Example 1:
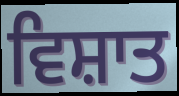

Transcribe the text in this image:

ਵਿਸ਼ਾਤ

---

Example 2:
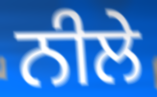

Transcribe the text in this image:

ਨੀਲੇ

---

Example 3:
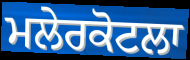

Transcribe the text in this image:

ਮਲੇਰਕੋਟਲਾ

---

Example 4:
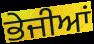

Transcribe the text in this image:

ਭੇਜੀਆਂ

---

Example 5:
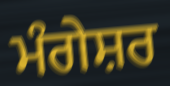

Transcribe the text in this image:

ਮੰਗੇਸ਼ਰ